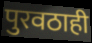
पुरवठाही